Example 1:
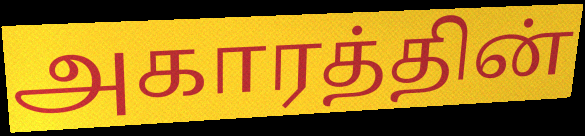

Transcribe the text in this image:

அகாரத்தின்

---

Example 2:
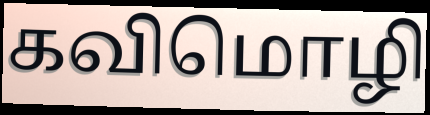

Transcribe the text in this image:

கவிமொழி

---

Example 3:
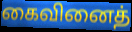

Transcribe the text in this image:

கைவினைத்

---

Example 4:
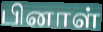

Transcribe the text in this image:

பினாள்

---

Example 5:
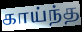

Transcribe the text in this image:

காய்ந்த